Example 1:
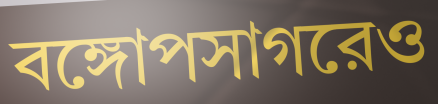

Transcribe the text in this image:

বঙ্গোপসাগরেও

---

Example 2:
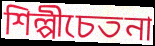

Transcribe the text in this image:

শিল্পীচেতনা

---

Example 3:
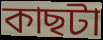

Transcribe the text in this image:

কাছটা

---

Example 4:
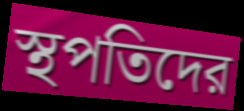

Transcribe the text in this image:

স্থপতিদের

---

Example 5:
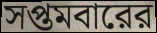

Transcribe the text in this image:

সপ্তমবারের